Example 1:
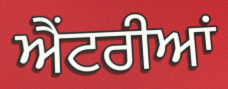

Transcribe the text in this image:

ਐਂਟਰੀਆਂ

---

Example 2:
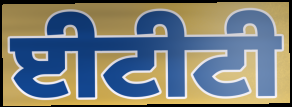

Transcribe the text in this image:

ਈਟੀਟੀ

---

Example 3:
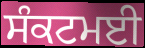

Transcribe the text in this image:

ਸੰਕਟਮਈ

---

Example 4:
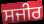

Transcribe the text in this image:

ਸਜੀਰ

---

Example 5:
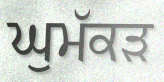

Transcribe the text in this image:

ਘੁਮੱਕੜ